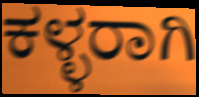
ಕಳ್ಳರಾಗಿ